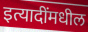
इत्यादींमधील